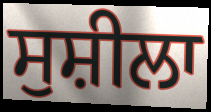
ਸੁਸ਼ੀਲਾ